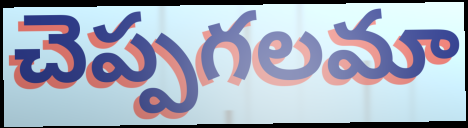
చెప్పగలమా